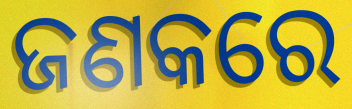
ଜଣକରେ